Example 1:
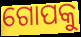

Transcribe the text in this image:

ଗୋପକୁ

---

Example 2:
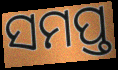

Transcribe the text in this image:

ସମପ୍ତ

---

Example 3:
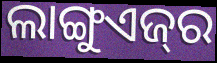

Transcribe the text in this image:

ଲାଙ୍ଗୁଏଜ୍‌ର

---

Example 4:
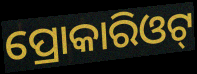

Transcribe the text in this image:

ପ୍ରୋକାରିଓଟ୍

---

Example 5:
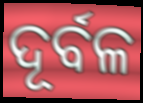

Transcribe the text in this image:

ଦୂର୍ବଳ